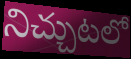
నిచ్చుటలో